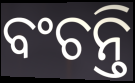
ବଂଚନ୍ତି